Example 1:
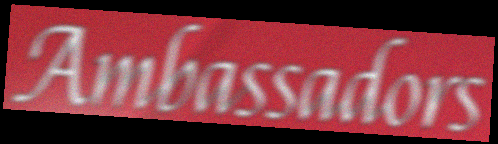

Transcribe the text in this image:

Ambassadors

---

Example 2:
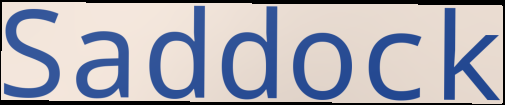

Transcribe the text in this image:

Saddock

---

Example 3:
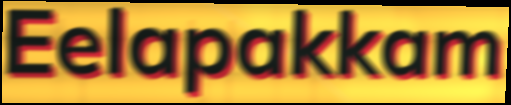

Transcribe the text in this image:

Eelapakkam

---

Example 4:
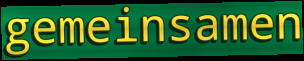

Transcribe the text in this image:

gemeinsamen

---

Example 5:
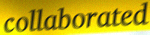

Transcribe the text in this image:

collaborated